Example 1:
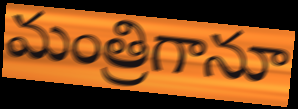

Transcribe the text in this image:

మంత్రిగానూ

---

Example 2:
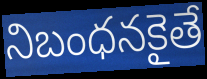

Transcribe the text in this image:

నిబంధనకైతే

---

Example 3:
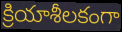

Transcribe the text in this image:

క్రియాశీలకంగా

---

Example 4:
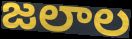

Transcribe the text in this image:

జలాల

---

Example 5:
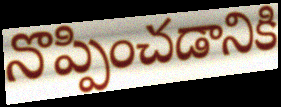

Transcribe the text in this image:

నొప్పించడానికి